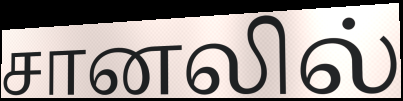
சானலில்